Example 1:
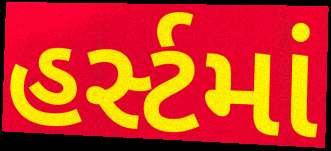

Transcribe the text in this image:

હર્સ્ટમાં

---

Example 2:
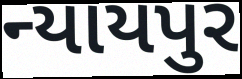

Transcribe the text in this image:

ન્યાયપુર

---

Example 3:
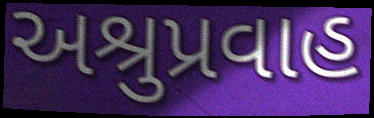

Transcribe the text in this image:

અશ્રુપ્રવાહ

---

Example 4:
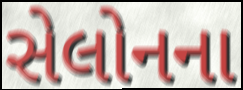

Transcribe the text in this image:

સેલોનના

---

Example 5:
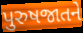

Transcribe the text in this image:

પુરુષજાતને